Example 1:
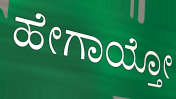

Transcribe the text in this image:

ಹೇಗಾಯ್ತೋ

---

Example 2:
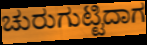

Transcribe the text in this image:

ಚುರುಗುಟ್ಟಿದಾಗ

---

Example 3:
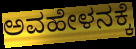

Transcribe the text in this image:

ಅವಹೇಳನಕ್ಕೆ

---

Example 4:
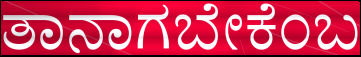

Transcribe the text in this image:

ತಾನಾಗಬೇಕೆಂಬ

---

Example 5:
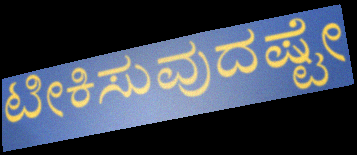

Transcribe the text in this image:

ಟೀಕಿಸುವುದಷ್ಟೇ